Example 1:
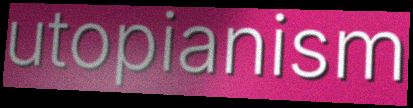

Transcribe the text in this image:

utopianism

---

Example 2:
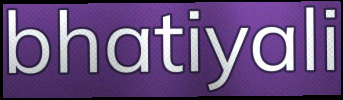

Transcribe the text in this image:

bhatiyali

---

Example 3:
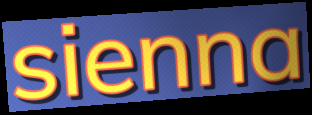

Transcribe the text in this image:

sienna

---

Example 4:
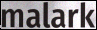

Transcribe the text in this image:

malark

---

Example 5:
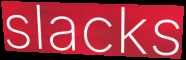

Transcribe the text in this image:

slacks